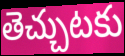
తెచ్చుటకు